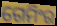
ଗେମିଂର